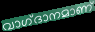
വാഗ്‌ദാനമാണ്